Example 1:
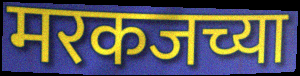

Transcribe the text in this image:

मरकजच्या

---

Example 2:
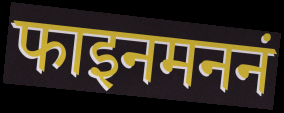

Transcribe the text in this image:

फाइनमननं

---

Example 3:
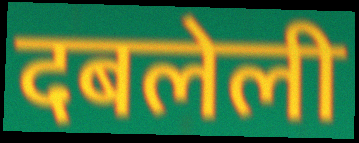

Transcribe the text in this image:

दबलेली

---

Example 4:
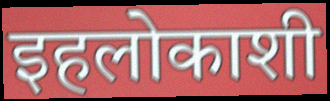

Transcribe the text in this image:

इहलोकाशी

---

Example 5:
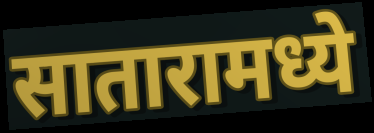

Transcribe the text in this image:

सातारामध्ये